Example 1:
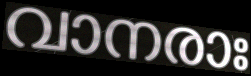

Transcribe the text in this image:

വാനരാഃ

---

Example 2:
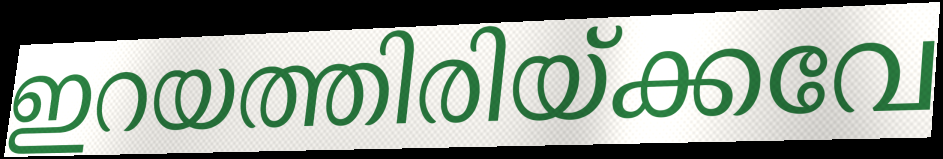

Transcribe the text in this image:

ഇറയത്തിരിയ്ക്കവേ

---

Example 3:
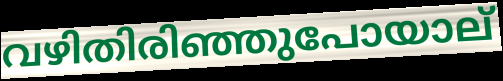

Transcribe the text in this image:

വഴിതിരിഞ്ഞുപോയാല്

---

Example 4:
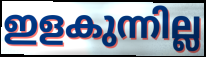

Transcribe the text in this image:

ഇളകുന്നില്ല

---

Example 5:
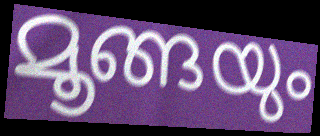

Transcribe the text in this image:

മൂങ്ങയും